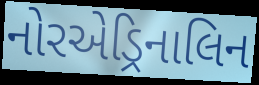
નોરએડ્રિનાલિન